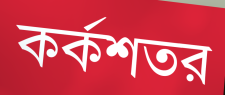
কর্কশতর